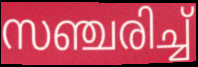
സഞ്ചരിച്ച്